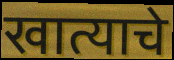
खात्याचे